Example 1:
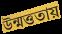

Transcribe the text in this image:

উন্মত্ততায়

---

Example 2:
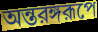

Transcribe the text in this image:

অন্তরঙ্গরূপে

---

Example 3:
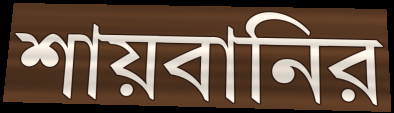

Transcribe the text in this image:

শায়বানির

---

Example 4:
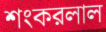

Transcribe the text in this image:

শংকরলাল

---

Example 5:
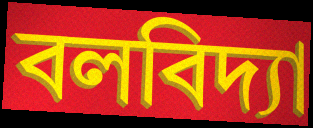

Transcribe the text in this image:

বলবিদ্যা